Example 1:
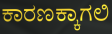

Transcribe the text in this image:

ಕಾರಣಕ್ಕಾಗಲಿ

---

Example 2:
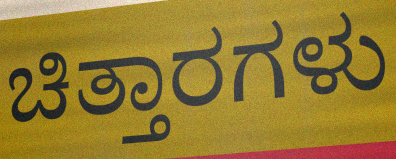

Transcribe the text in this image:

ಚಿತ್ತಾರಗಳು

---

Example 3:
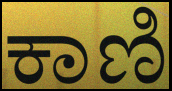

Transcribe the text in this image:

ಕಾಣಿ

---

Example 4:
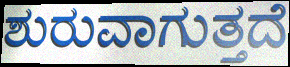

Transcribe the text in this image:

ಶುರುವಾಗುತ್ತದೆ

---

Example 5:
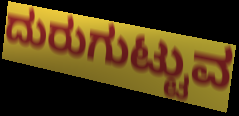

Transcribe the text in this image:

ದುರುಗುಟ್ಟುವ